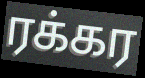
ரக்கர